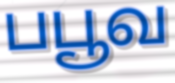
பபூவ